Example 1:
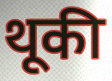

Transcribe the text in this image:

थूकी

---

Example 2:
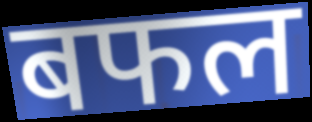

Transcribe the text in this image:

बफल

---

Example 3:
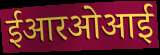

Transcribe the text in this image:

ईआरओआई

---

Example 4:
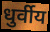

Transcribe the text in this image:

धुर्वीय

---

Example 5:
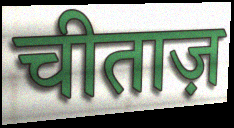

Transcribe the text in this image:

चीताज़